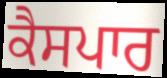
ਕੈਸਪਾਰ